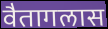
वैतागलास